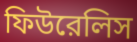
ফিউরেলিস